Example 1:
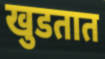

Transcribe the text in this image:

खुडतात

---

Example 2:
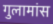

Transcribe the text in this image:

गुलामांस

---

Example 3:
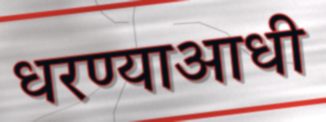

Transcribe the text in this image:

धरण्याआधी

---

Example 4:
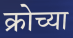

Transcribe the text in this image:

क्रोच्या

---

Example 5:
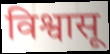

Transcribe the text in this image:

विश्वासू